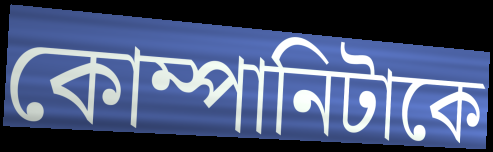
কোম্পানিটাকে